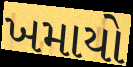
ખમાયો